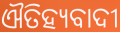
ଐତିହ୍ୟବାଦୀ